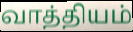
வாத்தியம்